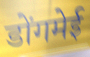
डोंगमेई